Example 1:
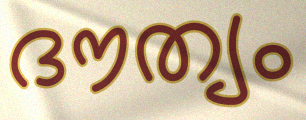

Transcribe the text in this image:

ദൗത്യം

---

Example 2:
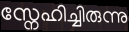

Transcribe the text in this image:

സ്നേഹിച്ചിരുന്നു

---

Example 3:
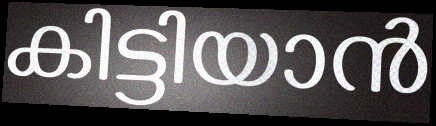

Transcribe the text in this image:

കിട്ടിയാൻ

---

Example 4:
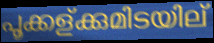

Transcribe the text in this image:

പൂക്കള്ക്കുമിടയില്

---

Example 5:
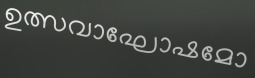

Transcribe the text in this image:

ഉത്സവാഘോഷമോ